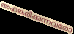
അഹങ്കരിക്കുന്നവരോ